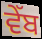
ਵੇੱਬ